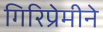
गिरिप्रेमीने